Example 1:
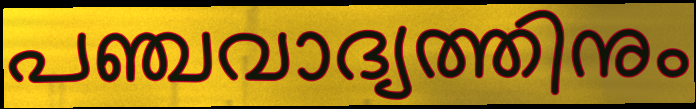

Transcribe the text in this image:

പഞ്ചവാദ്യത്തിനും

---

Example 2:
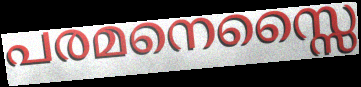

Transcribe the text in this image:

പരമനെസ്സൈ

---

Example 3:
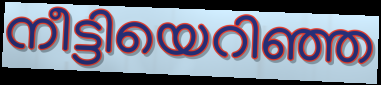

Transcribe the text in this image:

നീട്ടിയെറിഞ്ഞ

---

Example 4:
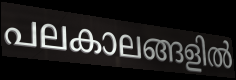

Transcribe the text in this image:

പലകാലങ്ങളിൽ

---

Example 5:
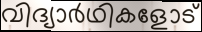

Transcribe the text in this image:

വിദ്യാർഥികളോട്